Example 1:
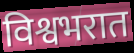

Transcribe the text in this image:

विश्वभरात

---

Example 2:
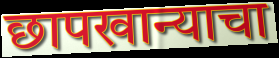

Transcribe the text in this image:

छापखान्याचा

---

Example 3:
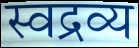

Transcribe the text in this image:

स्वद्रव्य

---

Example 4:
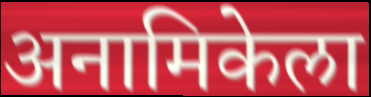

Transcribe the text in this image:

अनामिकेला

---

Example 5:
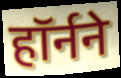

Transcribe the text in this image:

हॉर्नने